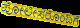
ಪೋಲೀಸರೊಂದಿಗೆ